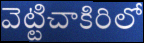
వెట్టిచాకిరిలో